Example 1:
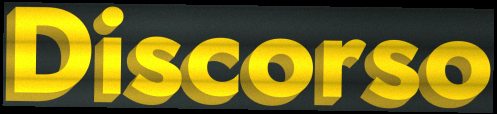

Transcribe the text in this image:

Discorso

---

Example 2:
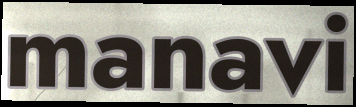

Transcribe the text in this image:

manavi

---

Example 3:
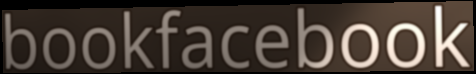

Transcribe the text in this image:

bookfacebook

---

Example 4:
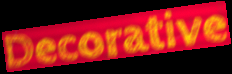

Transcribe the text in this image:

Decorative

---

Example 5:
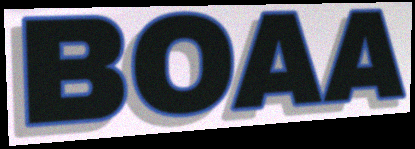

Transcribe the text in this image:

BOAA